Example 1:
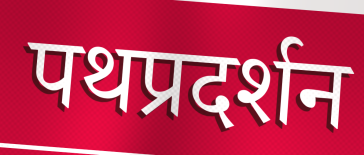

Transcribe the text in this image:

पथप्रदर्शन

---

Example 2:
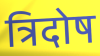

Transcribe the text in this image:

त्रिदोष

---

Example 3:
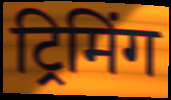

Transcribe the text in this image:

ट्रिमिंग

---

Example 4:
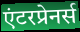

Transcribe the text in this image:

एंटरप्रेनर्स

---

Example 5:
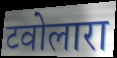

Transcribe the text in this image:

टवोलारा